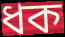
ধক